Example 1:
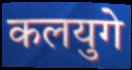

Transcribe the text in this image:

कलयुगे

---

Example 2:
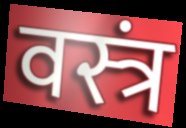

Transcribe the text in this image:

वस्त्रं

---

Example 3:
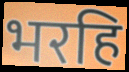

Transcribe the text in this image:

भरहि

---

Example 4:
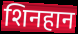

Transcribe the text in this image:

शिनहान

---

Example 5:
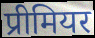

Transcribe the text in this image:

प्रीमियर